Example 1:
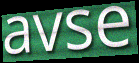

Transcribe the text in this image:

avse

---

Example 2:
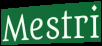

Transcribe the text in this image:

Mestri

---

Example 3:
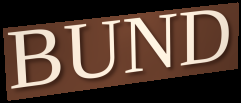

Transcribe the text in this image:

BUND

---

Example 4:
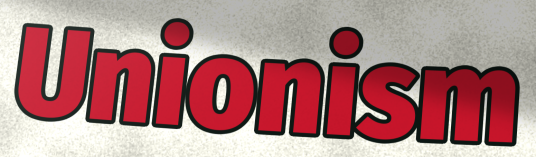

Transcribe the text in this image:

Unionism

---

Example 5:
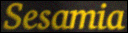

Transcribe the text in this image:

Sesamia